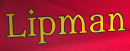
Lipman